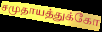
சமுதாயத்துக்கோ